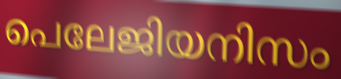
പെലേജിയനിസം